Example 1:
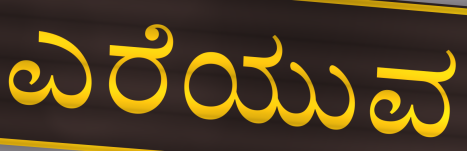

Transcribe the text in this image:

ಎರೆಯುವ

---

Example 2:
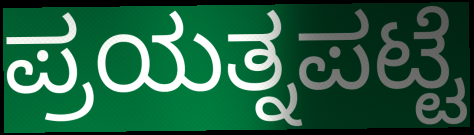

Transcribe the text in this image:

ಪ್ರಯತ್ನಪಟ್ಟೆ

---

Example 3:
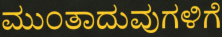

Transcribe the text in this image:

ಮುಂತಾದುವುಗಳಿಗೆ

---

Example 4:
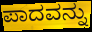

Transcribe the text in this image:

ಪಾದವನ್ನು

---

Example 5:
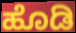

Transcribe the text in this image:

ಹೊಡಿ